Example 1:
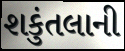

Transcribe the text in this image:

શકુંતલાની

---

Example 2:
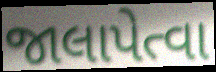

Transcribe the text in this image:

જાલાપેત્વા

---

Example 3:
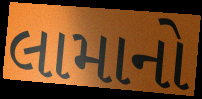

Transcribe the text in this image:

લામાનો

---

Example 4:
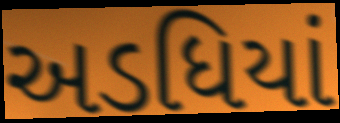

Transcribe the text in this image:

અડધિયાં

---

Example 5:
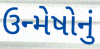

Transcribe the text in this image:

ઉન્મેષોનું